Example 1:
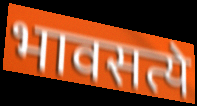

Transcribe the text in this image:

भावसत्ये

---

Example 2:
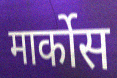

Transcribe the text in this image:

मार्कोस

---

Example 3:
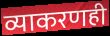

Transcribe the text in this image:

व्याकरणही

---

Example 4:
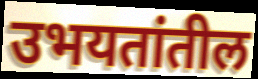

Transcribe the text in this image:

उभयतांतील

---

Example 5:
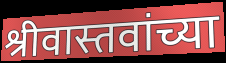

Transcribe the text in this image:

श्रीवास्तवांच्या